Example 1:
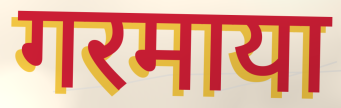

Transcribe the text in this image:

गरमाया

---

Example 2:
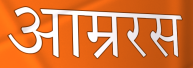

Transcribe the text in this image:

आम्ररस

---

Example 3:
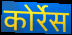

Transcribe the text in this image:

कोर्रेस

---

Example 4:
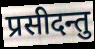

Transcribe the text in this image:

प्रसीदन्तु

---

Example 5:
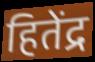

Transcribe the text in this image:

हितेंद्र